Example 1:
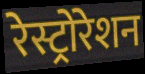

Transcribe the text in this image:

रेस्ट्रोरेशन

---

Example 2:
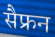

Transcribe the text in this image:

सैफ्रन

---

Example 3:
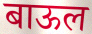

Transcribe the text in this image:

बाऊल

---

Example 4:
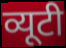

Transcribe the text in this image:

व्यूटी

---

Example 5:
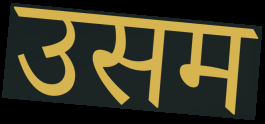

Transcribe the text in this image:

उसम